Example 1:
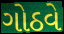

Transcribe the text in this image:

ગોઠવે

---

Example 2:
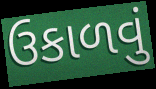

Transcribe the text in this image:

ઉકાળવું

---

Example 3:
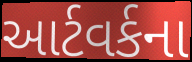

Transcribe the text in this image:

આર્ટવર્કના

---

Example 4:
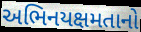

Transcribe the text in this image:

અભિનયક્ષમતાનો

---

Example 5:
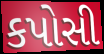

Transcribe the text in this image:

કપોસી